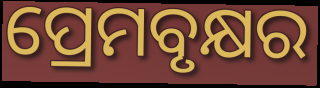
ପ୍ରେମବୃକ୍ଷର